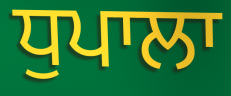
ਧੁਪਾਲਾ